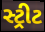
સ્ટ્રીટ